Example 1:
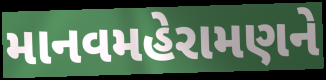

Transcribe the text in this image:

માનવમહેરામણને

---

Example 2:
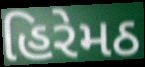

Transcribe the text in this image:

હિરેમઠ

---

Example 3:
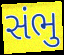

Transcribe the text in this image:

સંભુ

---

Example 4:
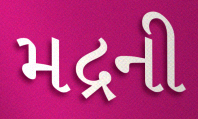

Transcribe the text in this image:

મદ્રની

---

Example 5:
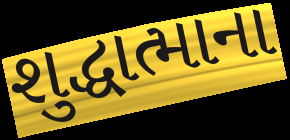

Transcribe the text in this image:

શુદ્ધાત્માના